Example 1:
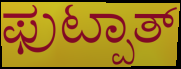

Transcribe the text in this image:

ಫುಟ್ಪಾತ್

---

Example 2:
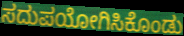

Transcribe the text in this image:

ಸದುಪಯೋಗಿಸಿಕೊಂಡು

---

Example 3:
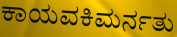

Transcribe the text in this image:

ಕಾಯವಕಿಮರ್ನತು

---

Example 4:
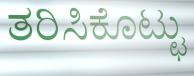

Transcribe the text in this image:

ತರಿಸಿಕೊಟ್ಟು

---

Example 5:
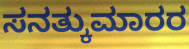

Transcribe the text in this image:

ಸನತ್ಕುಮಾರರ